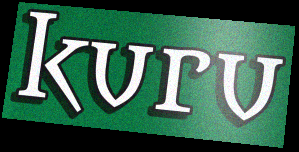
kuru